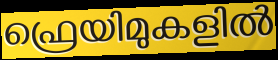
ഫ്രെയിമുകളിൽ